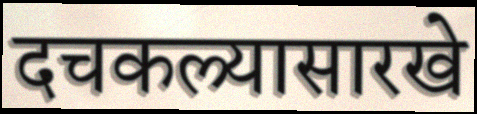
दचकल्यासारखे